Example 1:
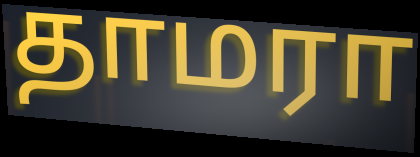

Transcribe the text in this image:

தாமரா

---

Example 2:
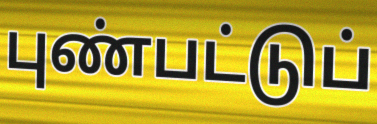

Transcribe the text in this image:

புண்பட்டுப்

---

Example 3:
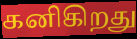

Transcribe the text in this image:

கனிகிறது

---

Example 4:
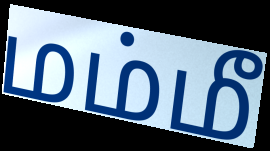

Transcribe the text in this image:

மம்மீ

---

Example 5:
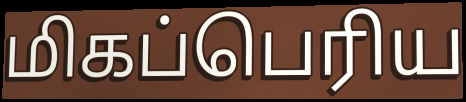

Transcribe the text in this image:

மிகப்பெரிய